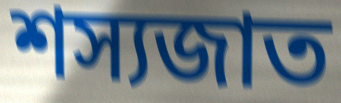
শস্যজাত